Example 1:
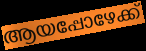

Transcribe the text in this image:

ആയപ്പോഴേക്ക്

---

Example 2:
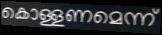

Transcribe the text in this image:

കൊള്ളണമെന്ന്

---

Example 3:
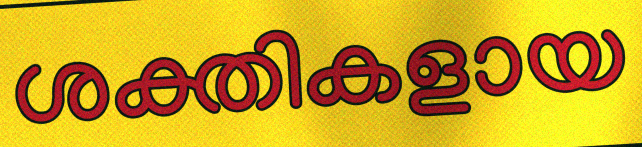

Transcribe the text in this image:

ശക്തികളായ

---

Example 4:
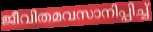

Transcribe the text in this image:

ജീവിതമവസാനിപ്പിച്ച്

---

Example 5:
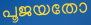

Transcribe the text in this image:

പൂജയതോ